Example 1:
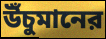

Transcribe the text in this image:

উঁচুমানের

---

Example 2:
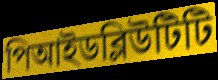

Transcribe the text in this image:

পিআইডব্লিউটিটি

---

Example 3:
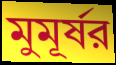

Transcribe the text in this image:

মুমূর্ষর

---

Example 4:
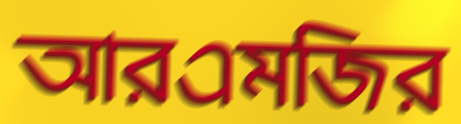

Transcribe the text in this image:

আরএমজির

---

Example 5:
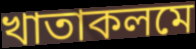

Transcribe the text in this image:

খাতাকলমে